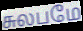
சுலபமே